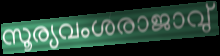
സൂര്യവംശരാജാവു്